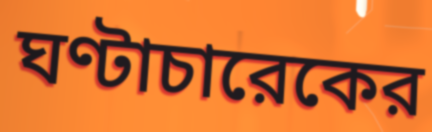
ঘণ্টাচারেকের